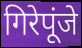
गिरेपूंजे